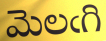
మెలఁగి